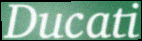
Ducati